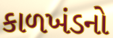
કાળખંડનો